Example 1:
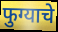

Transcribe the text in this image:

फुग्याचे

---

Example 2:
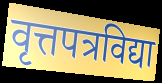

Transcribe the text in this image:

वृत्तपत्रविद्या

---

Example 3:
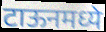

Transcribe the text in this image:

टाऊनमध्ये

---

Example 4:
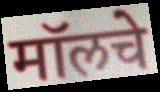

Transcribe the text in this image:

मॉलचे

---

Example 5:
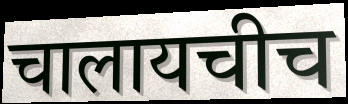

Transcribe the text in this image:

चालायचीच